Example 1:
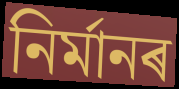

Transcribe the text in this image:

নিৰ্মানৰ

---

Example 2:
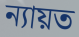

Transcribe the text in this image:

ন্যায়ত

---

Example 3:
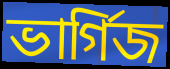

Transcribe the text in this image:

ভাৰ্গিজ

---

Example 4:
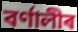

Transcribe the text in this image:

বৰ্ণালীৰ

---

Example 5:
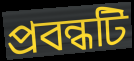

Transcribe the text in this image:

প্ৰবন্ধটি